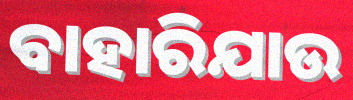
ବାହାରିଯାଉ